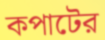
কপাটের